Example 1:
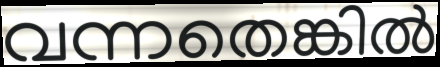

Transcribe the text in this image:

വന്നതെങ്കിൽ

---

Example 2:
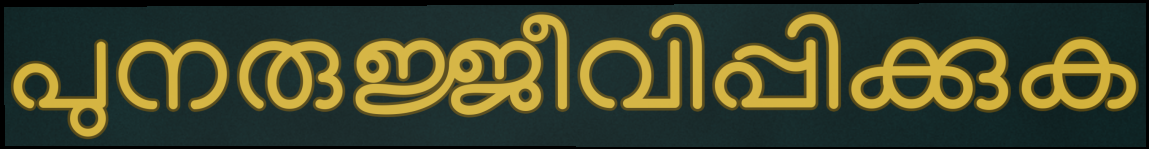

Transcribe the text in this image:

പുനരുജ്ജീവിപ്പിക്കുക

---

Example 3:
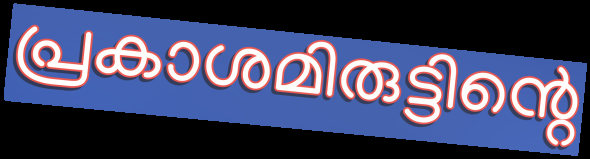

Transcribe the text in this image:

പ്രകാശമിരുട്ടിന്റെ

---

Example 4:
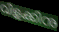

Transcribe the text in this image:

വിളക്കിനു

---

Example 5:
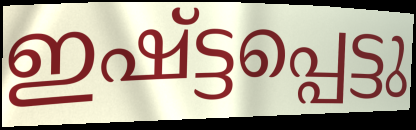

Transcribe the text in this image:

ഇഷ്ട്ടപ്പെട്ടു